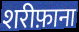
शरीफ़ाना